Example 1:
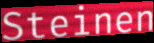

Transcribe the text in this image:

Steinen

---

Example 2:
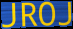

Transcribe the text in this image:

JROJ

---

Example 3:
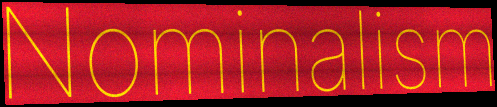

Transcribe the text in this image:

Nominalism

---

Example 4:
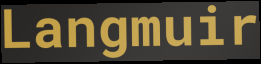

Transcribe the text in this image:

Langmuir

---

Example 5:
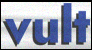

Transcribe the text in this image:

vult